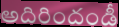
అదిరిందండీ